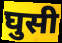
घुसी